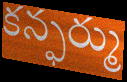
కన్ఫర్ము